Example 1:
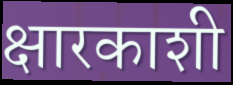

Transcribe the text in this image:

क्षारकाशी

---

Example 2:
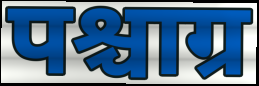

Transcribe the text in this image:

पश्चाग्र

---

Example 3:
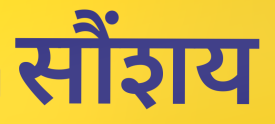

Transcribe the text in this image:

सौंशय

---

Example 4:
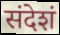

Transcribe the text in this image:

संदेशं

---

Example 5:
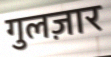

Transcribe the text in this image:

गुलज़ार